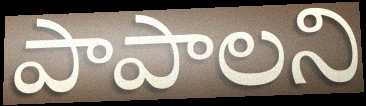
పాపాలని